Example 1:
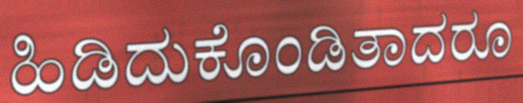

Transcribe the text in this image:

ಹಿಡಿದುಕೊಂಡಿತಾದರೂ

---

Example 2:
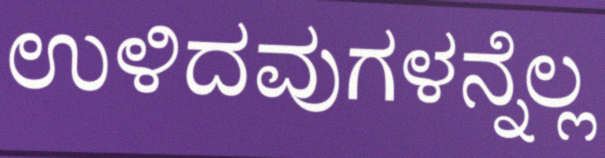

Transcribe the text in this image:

ಉಳಿದವುಗಳನ್ನೆಲ್ಲ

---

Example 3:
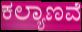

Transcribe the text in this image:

ಕಲ್ಯಾಣವೆ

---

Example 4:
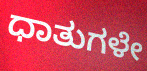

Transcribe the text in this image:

ಧಾತುಗಳೇ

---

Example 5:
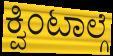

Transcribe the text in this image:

ಕ್ವಿಂಟಾಲ್ಗೆ